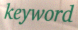
keyword